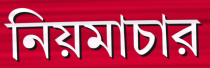
নিয়মাচার